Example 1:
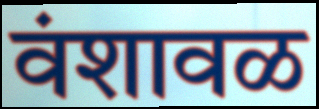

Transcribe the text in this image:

वंशावळ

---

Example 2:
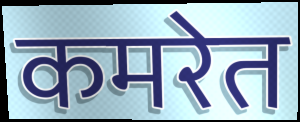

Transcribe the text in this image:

कमरेत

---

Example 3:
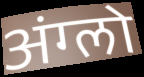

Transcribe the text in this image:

अंग्लो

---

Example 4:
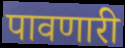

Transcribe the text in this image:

पावणारी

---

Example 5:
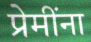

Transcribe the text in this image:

प्रेमींना